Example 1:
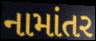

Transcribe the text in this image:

નામાંતર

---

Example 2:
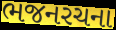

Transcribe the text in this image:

ભજનરચના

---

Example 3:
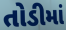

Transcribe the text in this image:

તોડીમાં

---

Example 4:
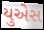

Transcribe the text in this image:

યુએસ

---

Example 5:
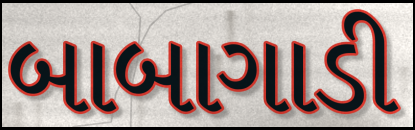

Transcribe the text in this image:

બાબાગાડી